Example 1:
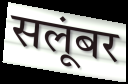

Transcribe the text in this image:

सलूंबर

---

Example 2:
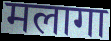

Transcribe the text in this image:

मलागा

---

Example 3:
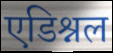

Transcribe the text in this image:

एडिश्नल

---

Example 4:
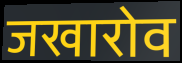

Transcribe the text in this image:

जखारोव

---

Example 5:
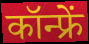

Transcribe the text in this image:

कॉन्फ्रें